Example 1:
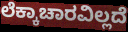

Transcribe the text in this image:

ಲೆಕ್ಕಾಚಾರವಿಲ್ಲದೆ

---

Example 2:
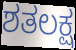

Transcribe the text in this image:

ಶತಲಕ್ಷ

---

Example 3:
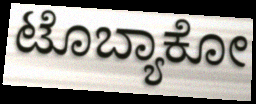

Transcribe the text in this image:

ಟೊಬ್ಯಾಕೋ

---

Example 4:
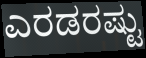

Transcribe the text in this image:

ಎರಡರಷ್ಟು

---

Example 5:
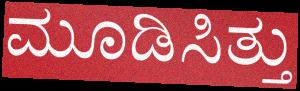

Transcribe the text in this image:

ಮೂಡಿಸಿತ್ತು